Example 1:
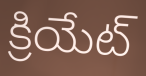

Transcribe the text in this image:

క్రియేట్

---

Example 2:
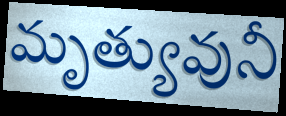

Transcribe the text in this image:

మృత్యువునీ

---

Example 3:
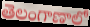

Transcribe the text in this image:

తెలంగాణాలో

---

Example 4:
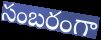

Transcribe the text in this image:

సంబరంగా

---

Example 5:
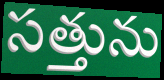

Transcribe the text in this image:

సత్తును